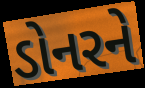
ડોનરને